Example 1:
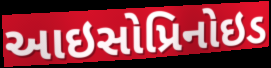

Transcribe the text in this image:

આઇસોપ્રિનોઇડ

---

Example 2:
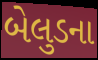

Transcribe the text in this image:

બેલુડના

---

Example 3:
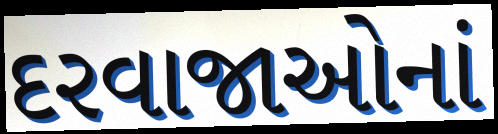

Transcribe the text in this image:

દરવાજાઓનાં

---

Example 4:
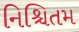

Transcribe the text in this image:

નિશ્ચિતમ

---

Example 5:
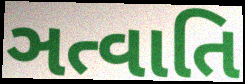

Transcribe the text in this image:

ઞત્વાતિ